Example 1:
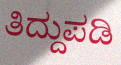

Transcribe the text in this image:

ತಿದ್ದುಪಡಿ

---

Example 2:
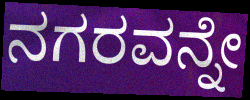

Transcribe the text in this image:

ನಗರವನ್ನೇ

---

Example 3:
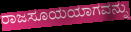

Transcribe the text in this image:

ರಾಜಸೂಯಯಾಗವನ್ನು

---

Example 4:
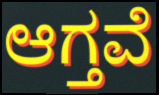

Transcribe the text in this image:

ಆಗ್ತವೆ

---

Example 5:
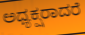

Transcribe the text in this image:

ಅಧ್ಯಕ್ಷರಾದರೆ